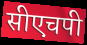
सीएचपी